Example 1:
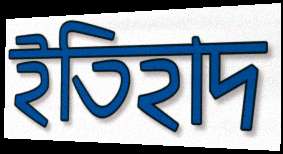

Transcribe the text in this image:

ইতিহাদ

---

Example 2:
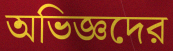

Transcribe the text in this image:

অভিজ্ঞদের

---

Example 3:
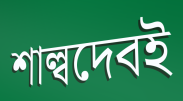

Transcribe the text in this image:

শাল্বদেবই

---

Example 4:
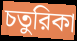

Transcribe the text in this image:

চতুরিকা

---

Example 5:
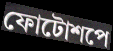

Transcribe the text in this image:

ফোটোশপে